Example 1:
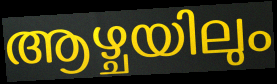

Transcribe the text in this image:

ആഴ്ചയിലും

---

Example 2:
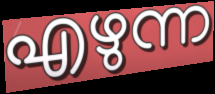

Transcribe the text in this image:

എഴുന്ന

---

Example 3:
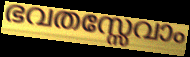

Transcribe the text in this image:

ഭവതസ്സേവാം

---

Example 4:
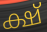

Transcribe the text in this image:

ക്ഷ്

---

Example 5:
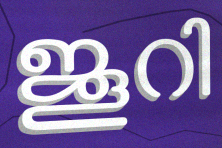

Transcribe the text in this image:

ജൂറി